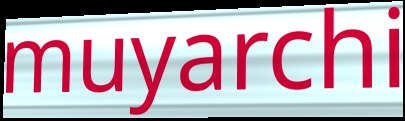
muyarchi